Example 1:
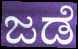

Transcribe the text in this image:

ಜಡೆ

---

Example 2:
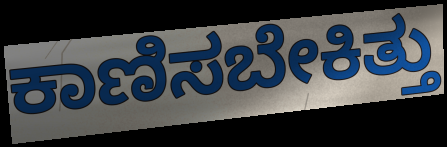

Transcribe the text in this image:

ಕಾಣಿಸಬೇಕಿತ್ತು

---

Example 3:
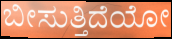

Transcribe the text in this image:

ಬೀಸುತ್ತಿದೆಯೋ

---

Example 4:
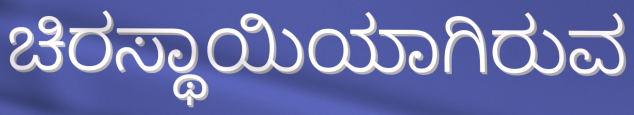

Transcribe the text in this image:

ಚಿರಸ್ಥಾಯಿಯಾಗಿರುವ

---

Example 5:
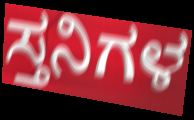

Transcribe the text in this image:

ಸ್ತನಿಗಳ